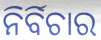
ନିର୍ବିଚାର